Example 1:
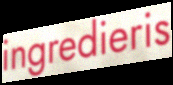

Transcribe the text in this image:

ingredieris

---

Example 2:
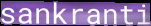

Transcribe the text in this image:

sankranti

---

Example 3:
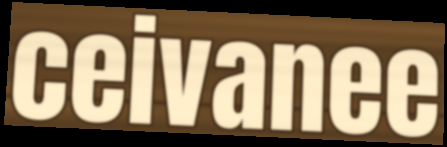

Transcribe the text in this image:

ceivanee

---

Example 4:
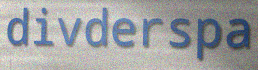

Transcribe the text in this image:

divderspa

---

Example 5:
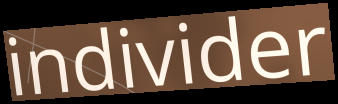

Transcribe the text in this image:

individer